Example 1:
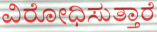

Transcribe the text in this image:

ವಿರೋಧಿಸುತ್ತಾರೆ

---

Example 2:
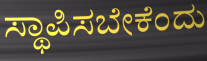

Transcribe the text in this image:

ಸ್ಥಾಪಿಸಬೇಕೆಂದು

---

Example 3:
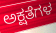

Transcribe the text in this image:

ಅಕ್ಷತೆಗಳ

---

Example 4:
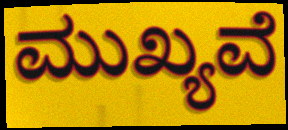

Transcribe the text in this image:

ಮುಖ್ಯವೆ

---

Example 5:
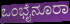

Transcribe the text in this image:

ಒಂಭೈನೂರಾ